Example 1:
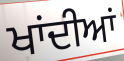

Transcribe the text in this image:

ਖਾਂਦੀਆਂ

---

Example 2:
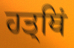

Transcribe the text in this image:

ਹਤ੍ਥਿਂ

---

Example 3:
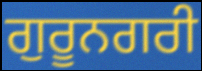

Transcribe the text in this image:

ਗੁਰੂਨਗਰੀ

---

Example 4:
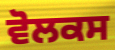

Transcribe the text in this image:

ਵੋਲਕਸ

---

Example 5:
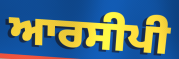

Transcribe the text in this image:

ਆਰਸੀਪੀ